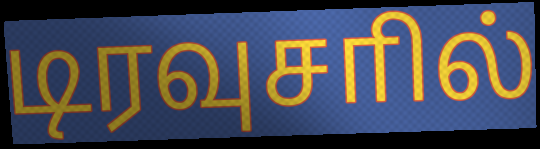
டிரவுசரில்